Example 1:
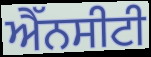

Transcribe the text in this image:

ਐੱਨਸੀਟੀ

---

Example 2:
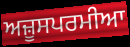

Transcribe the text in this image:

ਅਜ਼ੂਸਪਰਮੀਆ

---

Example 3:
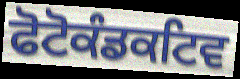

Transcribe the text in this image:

ਫੋਟੋਕੰਡਕਟਿਵ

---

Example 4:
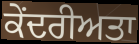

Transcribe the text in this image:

ਕੇਂਦਰੀਅਤਾ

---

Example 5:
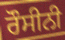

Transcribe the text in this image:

ਰੌਸੀਨੀ